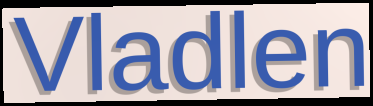
Vladlen